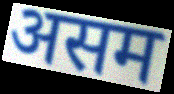
असम